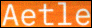
Aetle